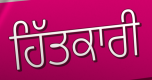
ਹਿੱਤਕਾਰੀ